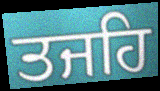
ਤਜਹਿ